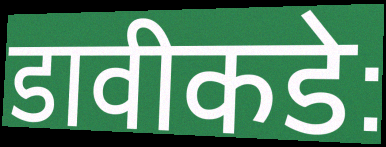
डावीकडेः